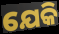
ଯେକି